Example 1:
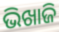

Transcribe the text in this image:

ଭିଖାଜି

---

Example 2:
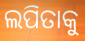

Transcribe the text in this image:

ଲପିତାକୁ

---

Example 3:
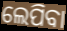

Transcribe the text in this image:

ଲେପିବା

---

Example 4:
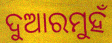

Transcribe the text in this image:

ଦୁଆରମୁହଁ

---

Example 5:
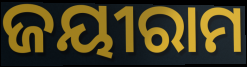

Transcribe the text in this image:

ଜୟୀରାମ